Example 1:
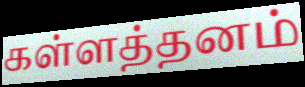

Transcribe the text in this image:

கள்ளத்தனம்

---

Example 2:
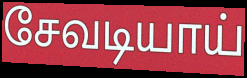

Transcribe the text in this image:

சேவடியாய்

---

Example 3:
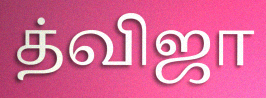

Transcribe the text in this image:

த்விஜா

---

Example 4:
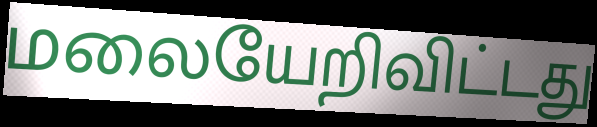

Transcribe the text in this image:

மலையேறிவிட்டது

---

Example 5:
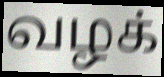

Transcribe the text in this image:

வழக்